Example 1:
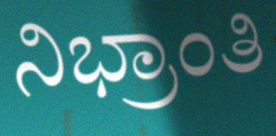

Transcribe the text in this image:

ನಿಭ್ರಾಂತಿ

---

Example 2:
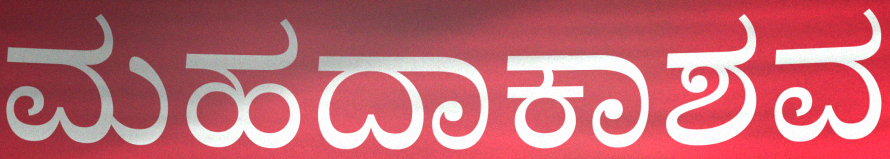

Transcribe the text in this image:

ಮಹದಾಕಾಶವ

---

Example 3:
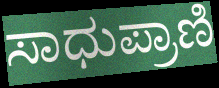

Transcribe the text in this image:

ಸಾಧುಪ್ರಾಣಿ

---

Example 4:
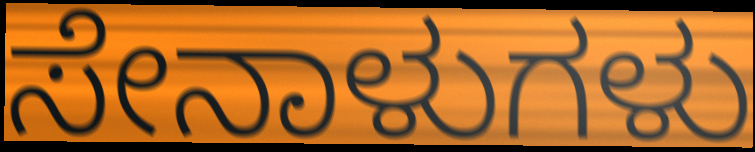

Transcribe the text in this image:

ಸೇನಾಳುಗಳು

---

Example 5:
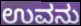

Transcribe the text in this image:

ಉವನು